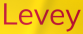
Levey